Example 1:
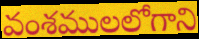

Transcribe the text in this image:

వంశములలోగాని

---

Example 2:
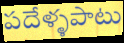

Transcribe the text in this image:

పదేళ్ళపాటు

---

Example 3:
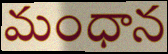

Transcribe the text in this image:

మంధాన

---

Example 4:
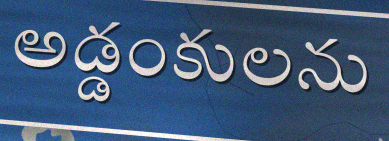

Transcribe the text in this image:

అడ్డంకులను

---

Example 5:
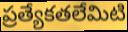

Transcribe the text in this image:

ప్రత్యేకతలేమిటి